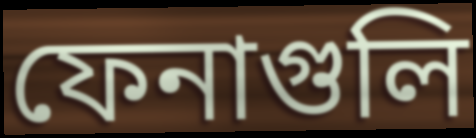
ফেনাগুলি